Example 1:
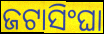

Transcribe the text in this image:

ଜଟାସିଂଘା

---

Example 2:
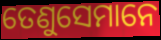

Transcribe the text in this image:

ତେଣୁସେମାନେ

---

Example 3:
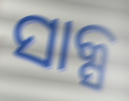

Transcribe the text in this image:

ସାକ୍ସ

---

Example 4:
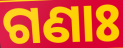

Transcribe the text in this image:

ଗଣାଃ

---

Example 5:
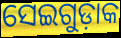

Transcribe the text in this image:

ସେଇଗୁଡ଼ାକ